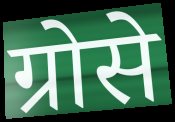
ग्रोसे